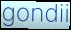
gondii